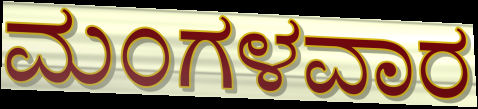
ಮಂಗಳವಾರ